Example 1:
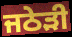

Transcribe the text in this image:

ਜਠੇੜੀ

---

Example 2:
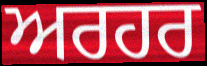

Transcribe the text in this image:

ਅਰਹਰ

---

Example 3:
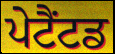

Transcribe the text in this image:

ਪੇਟੈਂਟਡ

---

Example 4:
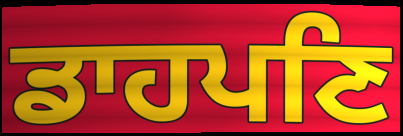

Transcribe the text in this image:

ਡਾਹਪਣਿ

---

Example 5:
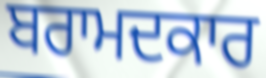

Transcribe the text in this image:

ਬਰਾਮਦਕਾਰ